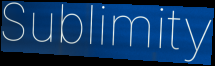
Sublimity